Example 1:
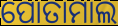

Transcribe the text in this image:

ପୋତାମାଲ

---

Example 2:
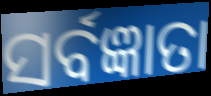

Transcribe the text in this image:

ସର୍ବଜ୍ଞାତା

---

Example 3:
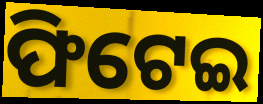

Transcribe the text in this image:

ଫିଟେଇ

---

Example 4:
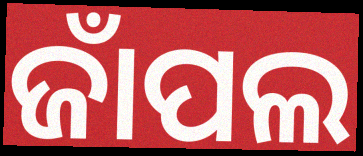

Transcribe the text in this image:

ଜାଁପଲ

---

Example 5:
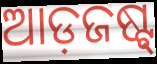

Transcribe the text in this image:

ଆଡ଼ଜଷ୍ଟ୍